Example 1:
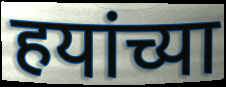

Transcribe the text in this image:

हयांच्या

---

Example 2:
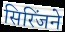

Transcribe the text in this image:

सिरिंजने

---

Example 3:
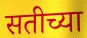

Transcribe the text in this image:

सतीच्या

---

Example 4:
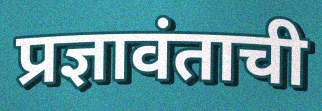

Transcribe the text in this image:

प्रज्ञावंताची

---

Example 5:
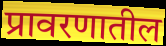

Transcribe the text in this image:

प्रावरणातील